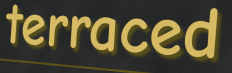
terraced